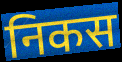
निकस